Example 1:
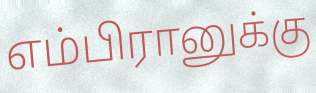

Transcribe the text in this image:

எம்பிரானுக்கு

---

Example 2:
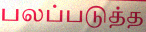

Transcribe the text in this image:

பலப்படுத்த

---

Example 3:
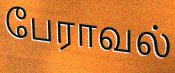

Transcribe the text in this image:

பேராவல்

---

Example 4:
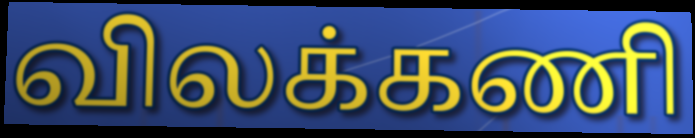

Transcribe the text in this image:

விலக்கணி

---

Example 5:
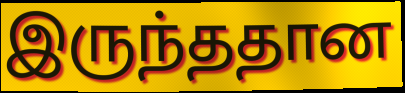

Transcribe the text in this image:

இருந்ததான